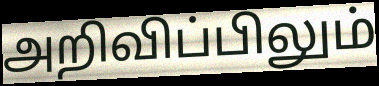
அறிவிப்பிலும்